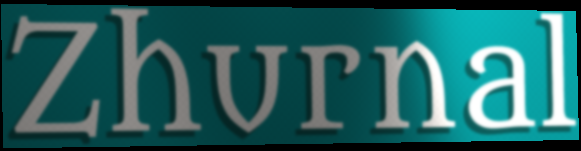
Zhurnal